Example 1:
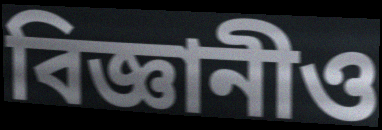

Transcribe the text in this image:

বিজ্ঞানীও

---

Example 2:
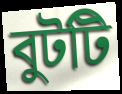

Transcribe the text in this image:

বুটটি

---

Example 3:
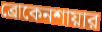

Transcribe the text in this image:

ব্রোকেনশায়ার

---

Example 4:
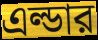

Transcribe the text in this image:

এল্ডার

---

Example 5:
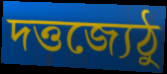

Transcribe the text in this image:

দত্তজ্যেঠু